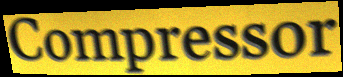
Compressor